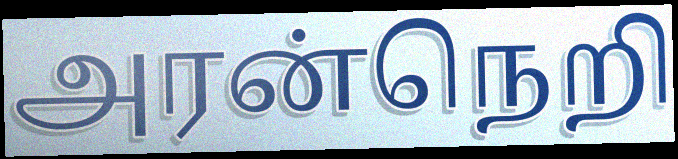
அரன்நெறி